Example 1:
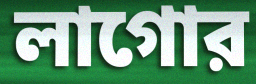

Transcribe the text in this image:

লাগোর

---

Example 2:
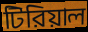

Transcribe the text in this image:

টিরিয়াল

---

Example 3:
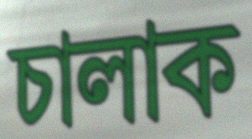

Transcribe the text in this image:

চালাক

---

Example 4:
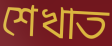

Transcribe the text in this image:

শেখাত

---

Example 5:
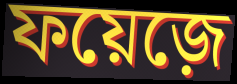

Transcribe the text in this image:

ফয়েজ়ে